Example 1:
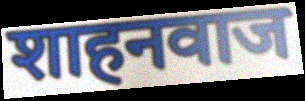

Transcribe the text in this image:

शाहनवाज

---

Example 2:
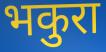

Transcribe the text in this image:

भकुरा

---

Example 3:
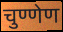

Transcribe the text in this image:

चुण्णेण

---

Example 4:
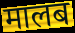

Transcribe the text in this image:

मालब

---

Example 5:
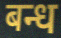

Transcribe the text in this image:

बन्ध